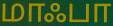
மாஃபா